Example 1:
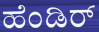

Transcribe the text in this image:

ಹೆಂಡಿರ್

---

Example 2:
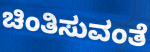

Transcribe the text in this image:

ಚಿಂತಿಸುವಂತೆ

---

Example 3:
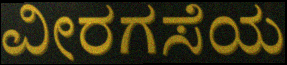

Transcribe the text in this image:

ವೀರಗಸೆಯ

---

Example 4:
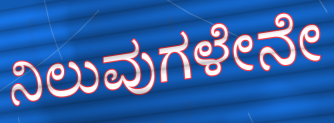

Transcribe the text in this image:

ನಿಲುವುಗಳೇನೇ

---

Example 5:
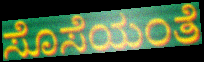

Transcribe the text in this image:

ಸೊಸೆಯಂತೆ